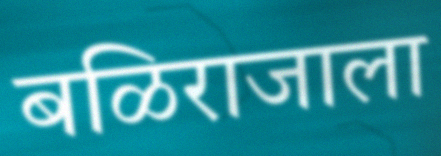
बळिराजाला